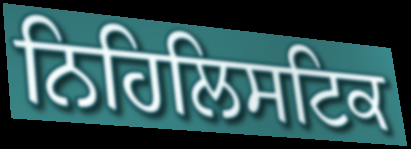
ਨਿਹਿਲਿਸਟਿਕ